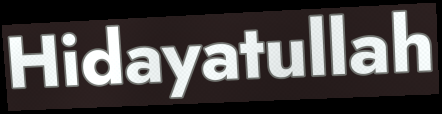
Hidayatullah